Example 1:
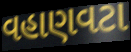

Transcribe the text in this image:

વહાણવટા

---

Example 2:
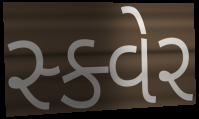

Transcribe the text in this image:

સ્ક્વેર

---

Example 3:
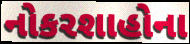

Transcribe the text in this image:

નોકરશાહોના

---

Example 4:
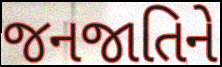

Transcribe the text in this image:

જનજાતિને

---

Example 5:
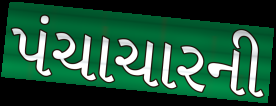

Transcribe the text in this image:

પંચાચારની